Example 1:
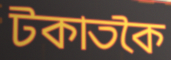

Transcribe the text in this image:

টকাতকৈ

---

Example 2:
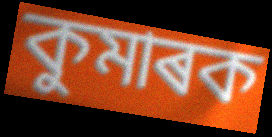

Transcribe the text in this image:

কুমাৰক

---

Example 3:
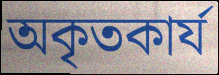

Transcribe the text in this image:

অকৃতকাৰ্য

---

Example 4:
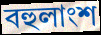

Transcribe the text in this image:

বহুলাংশ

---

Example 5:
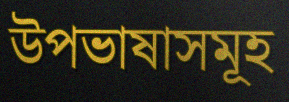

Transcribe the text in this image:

উপভাষাসমূহ